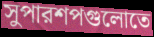
সুপারশপগুলোতে